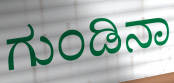
ಗುಂಡಿನಾ